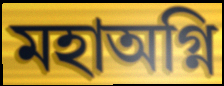
মহাঅগ্নি